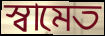
স্বামেত